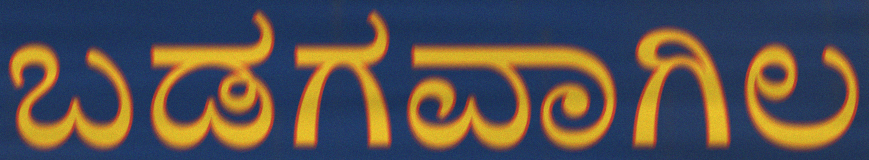
ಬಡಗವಾಗಿಲ